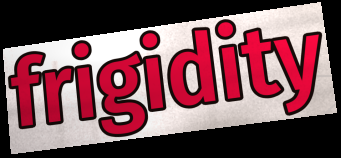
frigidity